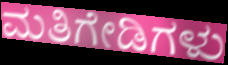
ಮತಿಗೇಡಿಗಳು